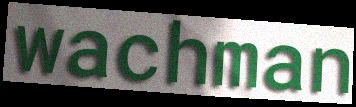
wachman